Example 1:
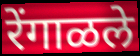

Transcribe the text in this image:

रेंगाळले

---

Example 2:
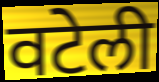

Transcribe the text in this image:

वटेली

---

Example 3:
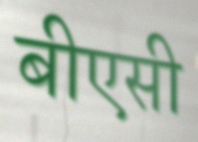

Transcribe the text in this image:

बीएसी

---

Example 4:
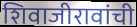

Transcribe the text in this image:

शिवाजीरावांची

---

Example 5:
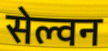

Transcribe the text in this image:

सेल्वन